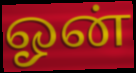
ஓன்